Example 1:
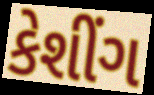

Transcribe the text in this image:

કેશીંગ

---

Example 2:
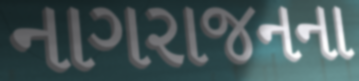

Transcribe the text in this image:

નાગરાજનના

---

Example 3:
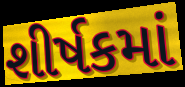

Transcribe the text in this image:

શીર્ષકમાં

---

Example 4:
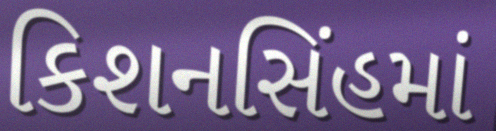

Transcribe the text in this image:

કિશનસિંહમાં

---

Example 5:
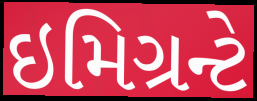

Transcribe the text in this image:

ઇમિગ્રન્ટે